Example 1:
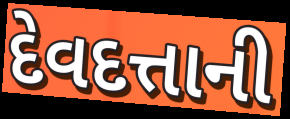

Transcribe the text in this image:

દેવદત્તાની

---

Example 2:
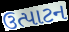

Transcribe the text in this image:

ઉત્પાટન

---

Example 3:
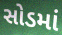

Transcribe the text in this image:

સોડમાં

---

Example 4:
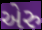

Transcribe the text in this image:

એરુ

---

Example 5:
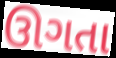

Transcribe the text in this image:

ઊગતા